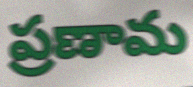
ప్రణామ